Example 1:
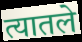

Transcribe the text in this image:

त्‍यातले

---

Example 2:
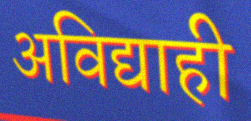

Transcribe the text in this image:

अविद्याही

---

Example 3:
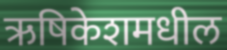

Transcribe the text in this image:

ऋषिकेशमधील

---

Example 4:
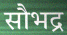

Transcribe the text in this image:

सौभद्र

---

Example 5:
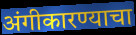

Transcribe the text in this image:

अंगीकारण्याचा